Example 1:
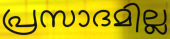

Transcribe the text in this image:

പ്രസാദമില്ല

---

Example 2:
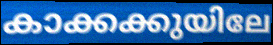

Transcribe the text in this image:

കാക്കക്കുയിലേ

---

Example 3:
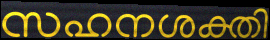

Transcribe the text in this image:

സഹനശക്തി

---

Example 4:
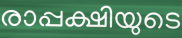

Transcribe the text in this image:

രാപ്പക്ഷിയുടെ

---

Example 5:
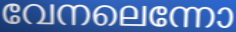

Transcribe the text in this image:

വേനലെന്നോ